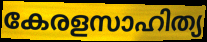
കേരളസാഹിത്യ